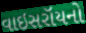
વાઇસરૉયનો